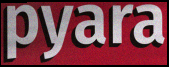
pyara